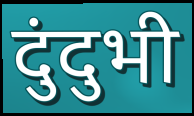
दुंदुभी